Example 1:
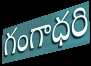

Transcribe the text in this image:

గంగాధరి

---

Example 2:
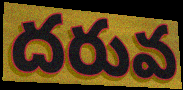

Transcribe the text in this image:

దరువ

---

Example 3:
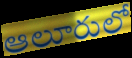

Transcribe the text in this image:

ఆలూరులో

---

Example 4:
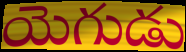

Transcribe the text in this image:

యెగుడు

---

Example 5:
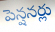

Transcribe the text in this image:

పెన్షనర్లు